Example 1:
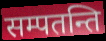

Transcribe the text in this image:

सम्पतन्ति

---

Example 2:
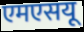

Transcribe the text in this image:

एमएसयू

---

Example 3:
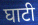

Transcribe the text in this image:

घाटी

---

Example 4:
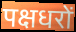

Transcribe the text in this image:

पक्षधरों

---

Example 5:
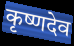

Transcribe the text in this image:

कृष्णदेव